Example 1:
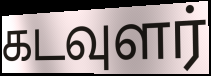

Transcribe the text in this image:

கடவுளர்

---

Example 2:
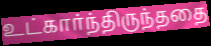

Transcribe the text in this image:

உட்கார்ந்திருந்ததை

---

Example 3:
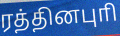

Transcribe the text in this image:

ரத்தினபுரி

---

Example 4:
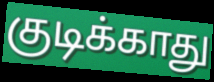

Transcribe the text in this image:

குடிக்காது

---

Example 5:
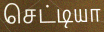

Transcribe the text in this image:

செட்டியா